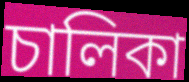
চালিকা